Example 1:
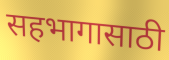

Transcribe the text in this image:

सहभागासाठी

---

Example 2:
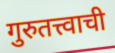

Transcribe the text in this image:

गुरुतत्त्वाची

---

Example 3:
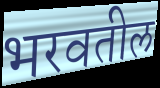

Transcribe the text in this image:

भरवतील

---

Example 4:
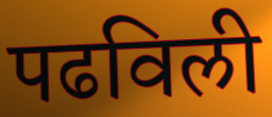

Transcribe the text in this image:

पढविली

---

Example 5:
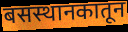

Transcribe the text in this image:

बसस्थानकातून